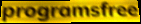
programsfree